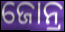
ଜୋନ୍ର